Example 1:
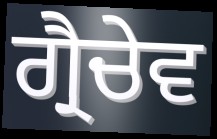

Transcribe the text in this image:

ਗ੍ਰੈਚੇਵ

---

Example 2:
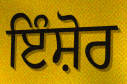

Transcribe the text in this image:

ਇੰਸ਼ੋਰ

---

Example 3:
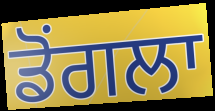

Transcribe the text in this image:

ਡੋਂਗਲਾ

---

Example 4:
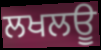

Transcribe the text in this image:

ਲਖਲਊ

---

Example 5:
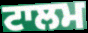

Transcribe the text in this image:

ਟਾਲਮ